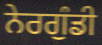
ਨੇਰਗੁੰਡੀ